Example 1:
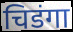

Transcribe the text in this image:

चिडंगा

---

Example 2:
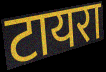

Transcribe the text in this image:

टायरा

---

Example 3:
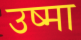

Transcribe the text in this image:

उष्मा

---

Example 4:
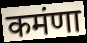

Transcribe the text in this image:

कमंणा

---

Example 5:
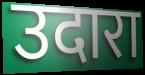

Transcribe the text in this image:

उदारा